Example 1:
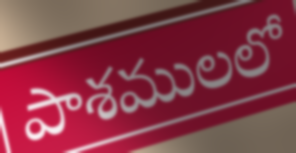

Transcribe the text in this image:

పాశములలో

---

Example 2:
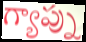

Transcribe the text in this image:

గ్యాప్ను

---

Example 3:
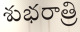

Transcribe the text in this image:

శుభరాత్రి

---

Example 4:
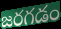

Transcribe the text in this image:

జరగడం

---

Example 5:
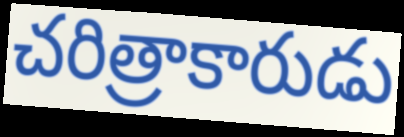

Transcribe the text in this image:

చరిత్రాకారుడు